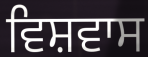
ਵਿਸ਼ਵਾਸ